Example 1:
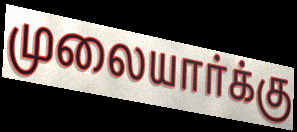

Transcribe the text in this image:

முலையார்க்கு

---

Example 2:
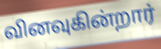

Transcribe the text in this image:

வினவுகின்றார்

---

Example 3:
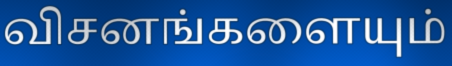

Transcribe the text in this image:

விசனங்களையும்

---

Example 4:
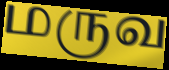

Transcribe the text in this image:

மருவ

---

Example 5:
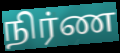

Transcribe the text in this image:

நிர்ண